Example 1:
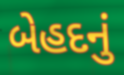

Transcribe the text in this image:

બેહદનું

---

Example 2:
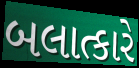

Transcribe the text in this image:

બલાત્કારે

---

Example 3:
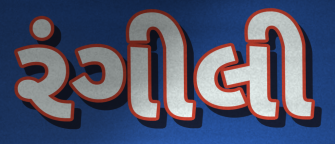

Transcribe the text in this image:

રંગીલી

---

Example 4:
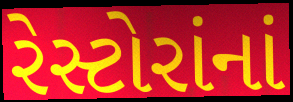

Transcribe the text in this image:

રેસ્ટોરાંનાં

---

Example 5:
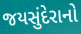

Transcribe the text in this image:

જયસુંદેરાનો